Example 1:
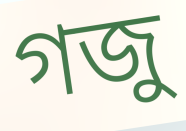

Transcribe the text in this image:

গজু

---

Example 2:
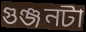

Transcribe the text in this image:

গুঞ্জনটা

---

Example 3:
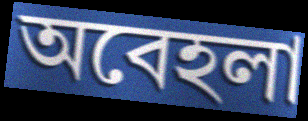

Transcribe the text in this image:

অবেহলা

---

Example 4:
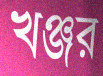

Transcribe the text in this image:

খঞ্জর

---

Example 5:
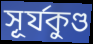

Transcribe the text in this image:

সূর্যকুণ্ড